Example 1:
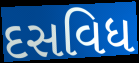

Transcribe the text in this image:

દસવિધ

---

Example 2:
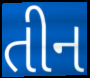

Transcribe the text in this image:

તીન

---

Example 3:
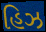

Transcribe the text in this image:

હિઝ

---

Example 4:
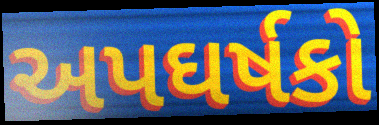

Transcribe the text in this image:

અપઘર્ષકો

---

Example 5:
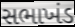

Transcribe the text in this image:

સભાખંડ